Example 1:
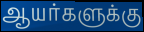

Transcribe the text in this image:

ஆயர்களுக்கு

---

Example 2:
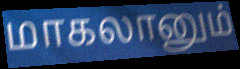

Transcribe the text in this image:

மாகலானும்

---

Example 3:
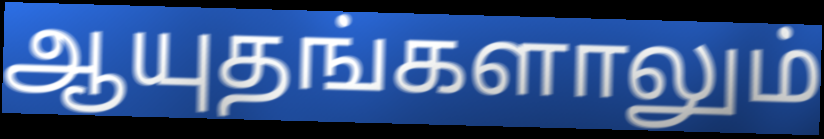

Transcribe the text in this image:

ஆயுதங்களாலும்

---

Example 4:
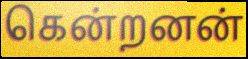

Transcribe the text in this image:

கென்றனன்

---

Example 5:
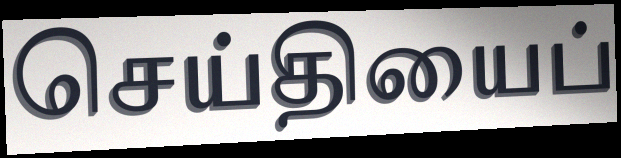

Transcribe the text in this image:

செய்தியைப்